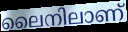
ലൈനിലാണ്